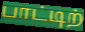
பாட்டிற்